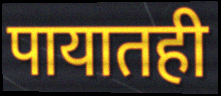
पायातही